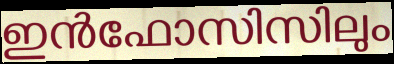
ഇൻഫോസിസിലും